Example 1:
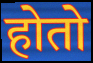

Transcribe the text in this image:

होतो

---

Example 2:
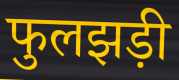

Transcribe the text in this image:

फुलझड़ी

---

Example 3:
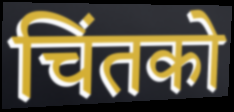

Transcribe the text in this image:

चिंतको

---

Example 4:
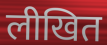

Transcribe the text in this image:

लीखित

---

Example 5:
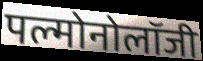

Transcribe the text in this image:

पल्मोनोलॉजी